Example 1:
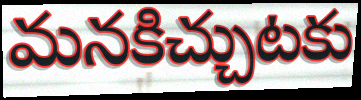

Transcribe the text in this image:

మనకిచ్చుటకు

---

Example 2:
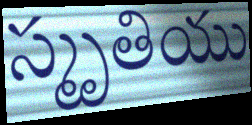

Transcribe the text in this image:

స్మృతియు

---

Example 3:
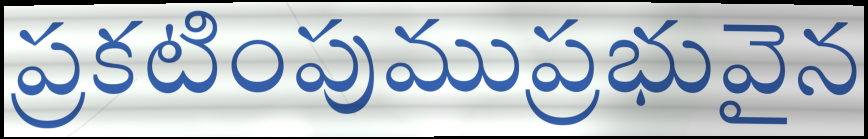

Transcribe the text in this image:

ప్రకటింపుముప్రభువైన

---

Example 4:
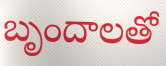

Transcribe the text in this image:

బృందాలతో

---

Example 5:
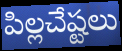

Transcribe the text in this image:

పిల్లచేష్టలు